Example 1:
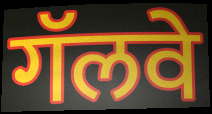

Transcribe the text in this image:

गॅलवे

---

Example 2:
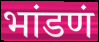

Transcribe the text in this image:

भांडणं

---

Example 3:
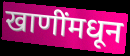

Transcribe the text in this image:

खाणींमधून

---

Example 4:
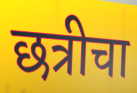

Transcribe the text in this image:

छत्रीचा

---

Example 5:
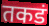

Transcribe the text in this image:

तकडं